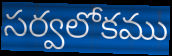
సర్వలోకము